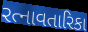
રત્નાવતારિકા